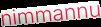
nimmannu